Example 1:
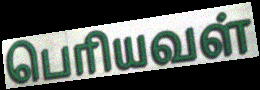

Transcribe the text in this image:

பெரியவள்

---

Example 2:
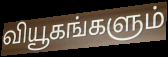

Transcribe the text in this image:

வியூகங்களும்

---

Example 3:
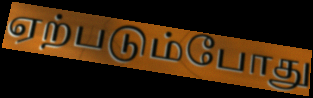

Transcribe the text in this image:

ஏற்படும்போது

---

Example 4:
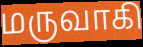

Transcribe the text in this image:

மருவாகி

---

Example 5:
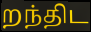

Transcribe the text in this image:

றந்திட